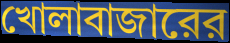
খোলাবাজারের